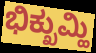
ಭಿಕ್ಖುಮ್ಹಿ